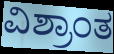
ವಿಶ್ರಾಂತ